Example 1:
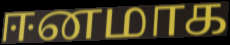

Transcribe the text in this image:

ஈனமாக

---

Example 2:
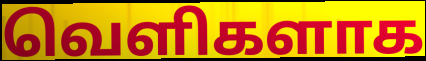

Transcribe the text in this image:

வெளிகளாக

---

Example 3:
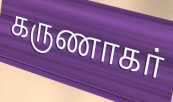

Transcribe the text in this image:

கருணாகர்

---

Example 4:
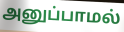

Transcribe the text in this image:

அனுப்பாமல்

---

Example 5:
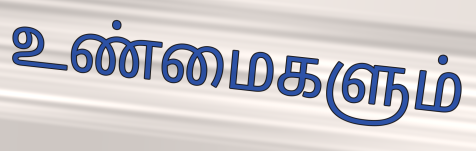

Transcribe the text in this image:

உண்மைகளும்